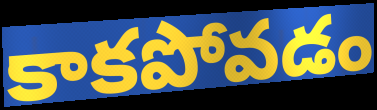
కాకపోవడం